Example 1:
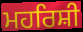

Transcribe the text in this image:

ਮਹਰਿਸ਼ੀ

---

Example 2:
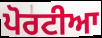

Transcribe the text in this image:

ਪੋਰਟੀਆ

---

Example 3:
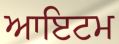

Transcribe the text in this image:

ਆਇਟਮ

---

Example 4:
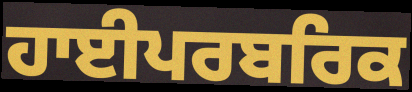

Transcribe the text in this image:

ਹਾਈਪਰਬਰਿਕ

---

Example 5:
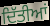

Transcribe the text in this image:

ਦਿੱਤੀਆਂ